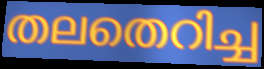
തലതെറിച്ച